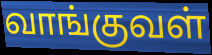
வாங்குவள்